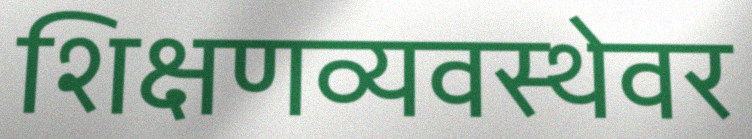
शिक्षणव्यवस्थेवर